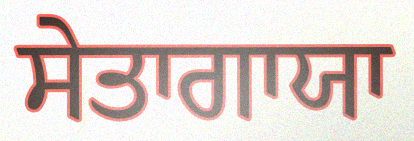
ਸੇਤਾਗਾਯਾ